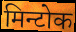
मिन्टोक